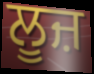
ਲੂਜ਼